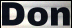
Don